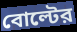
বোল্টের